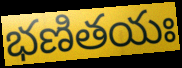
భణితయః